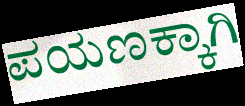
ಪಯಣಕ್ಕಾಗಿ